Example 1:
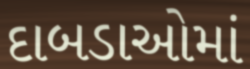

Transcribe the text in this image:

દાબડાઓમાં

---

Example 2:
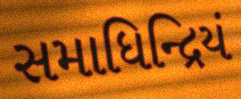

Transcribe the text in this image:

સમાધિન્દ્રિયં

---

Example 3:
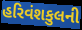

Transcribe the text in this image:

હરિવંશકુલની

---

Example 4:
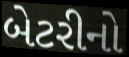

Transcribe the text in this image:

બેટરીનો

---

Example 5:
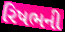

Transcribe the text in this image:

રિષભની